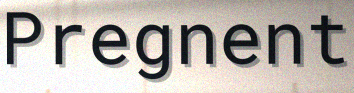
Pregnent